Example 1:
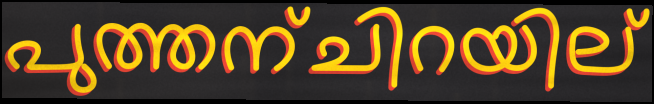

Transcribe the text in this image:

പുത്തന്ചിറയില്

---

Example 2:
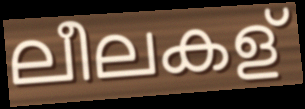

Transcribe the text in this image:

ലീലകള്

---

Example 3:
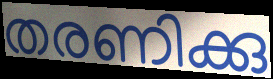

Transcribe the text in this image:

തരണിക്കു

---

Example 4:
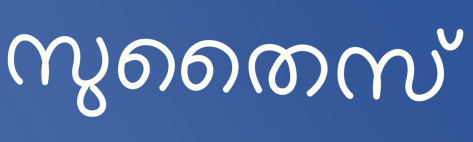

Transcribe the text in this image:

സുതൈസ്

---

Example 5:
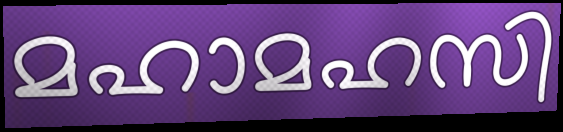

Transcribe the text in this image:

മഹാമഹസി